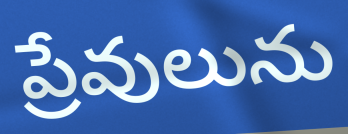
ప్రేవులును